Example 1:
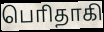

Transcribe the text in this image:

பெரிதாகி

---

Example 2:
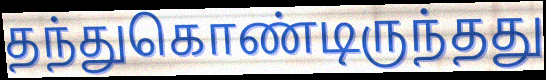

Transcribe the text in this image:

தந்துகொண்டிருந்தது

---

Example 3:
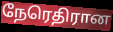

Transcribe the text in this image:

நேரெதிரான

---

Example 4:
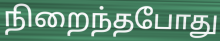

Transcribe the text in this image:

நிறைந்தபோது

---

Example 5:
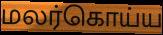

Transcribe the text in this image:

மலர்கொய்ய